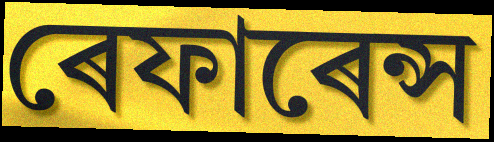
ৰেফাৰেন্স